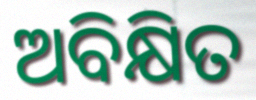
ଅବିକ୍ଷିତ